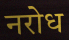
नरोध